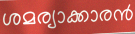
ശമര്യാക്കാരൻ